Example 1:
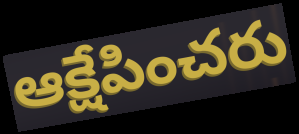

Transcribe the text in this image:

ఆక్షేపించరు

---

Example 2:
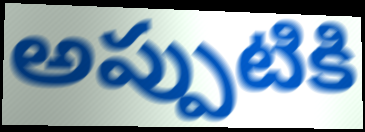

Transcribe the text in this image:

అప్పుటికి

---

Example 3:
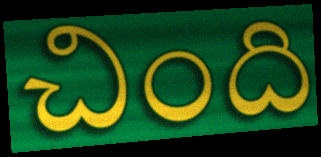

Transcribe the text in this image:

చింది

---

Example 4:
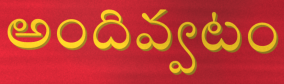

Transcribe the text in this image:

అందివ్వటం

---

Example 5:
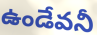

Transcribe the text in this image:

ఉండేవనీ